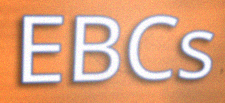
EBCs